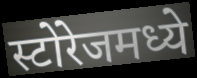
स्टोरेजमध्ये